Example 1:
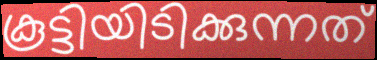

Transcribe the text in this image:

കൂട്ടിയിടിക്കുന്നത്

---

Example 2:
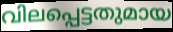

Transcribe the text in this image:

വിലപ്പെട്ടതുമായ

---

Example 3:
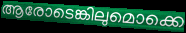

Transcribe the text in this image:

ആരോടെങ്കിലുമൊക്കെ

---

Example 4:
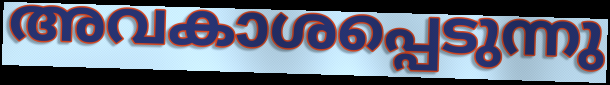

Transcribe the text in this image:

അവകാശപ്പെടുന്നു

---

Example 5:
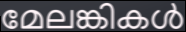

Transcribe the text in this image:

മേലങ്കികൾ